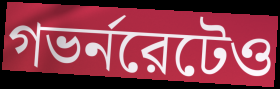
গভর্নরেটেও